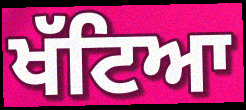
ਖੱਟਿਆ